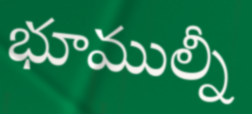
భూముల్నీ